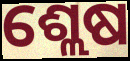
ଶ୍ଲେଷ